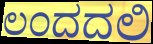
ಲಂದದಲಿ